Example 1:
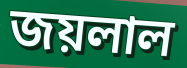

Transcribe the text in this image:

জয়লাল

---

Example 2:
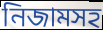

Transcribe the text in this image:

নিজামসহ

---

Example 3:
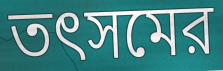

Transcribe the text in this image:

তৎসমের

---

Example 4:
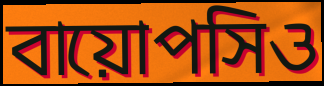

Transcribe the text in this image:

বায়োপসিও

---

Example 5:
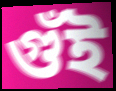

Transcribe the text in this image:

গুঁই